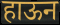
हाऊन